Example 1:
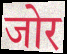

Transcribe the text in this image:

जोर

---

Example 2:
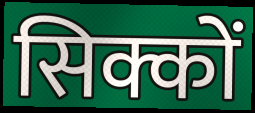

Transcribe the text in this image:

सिक्‍कों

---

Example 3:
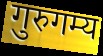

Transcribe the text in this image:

गुरुगम्य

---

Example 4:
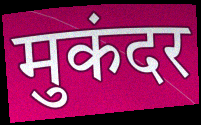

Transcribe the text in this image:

मुकंदर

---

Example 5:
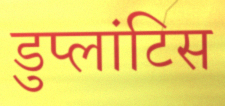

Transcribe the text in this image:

डुप्लांटिस